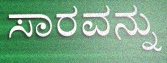
ಸಾರವನ್ನು